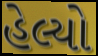
હેલ્યો